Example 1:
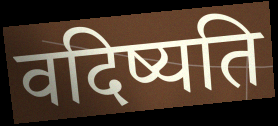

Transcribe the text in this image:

वदिष्यति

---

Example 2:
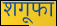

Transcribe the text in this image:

शगूफा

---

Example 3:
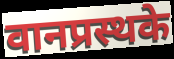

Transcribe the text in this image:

वानप्रस्थके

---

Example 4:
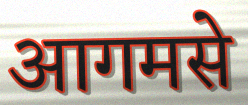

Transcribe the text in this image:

आगमसे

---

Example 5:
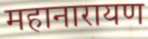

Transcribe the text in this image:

महानारायण